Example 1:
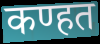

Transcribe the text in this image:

कण्हत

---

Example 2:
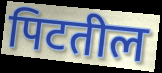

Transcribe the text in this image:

पिटतील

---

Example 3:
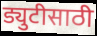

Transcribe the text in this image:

ड्युटीसाठी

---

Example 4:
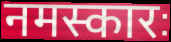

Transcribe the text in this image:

नमस्कारः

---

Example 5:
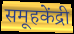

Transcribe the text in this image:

समूहकेंद्री